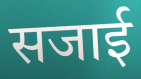
सजाई